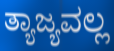
ತ್ಯಾಜ್ಯವಲ್ಲ